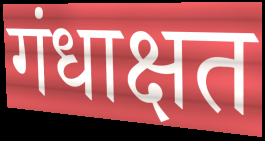
गंधाक्षत